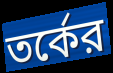
তর্কের